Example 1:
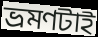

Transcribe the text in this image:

ভ্রমণটাই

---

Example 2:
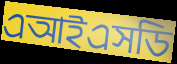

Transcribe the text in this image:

এআইএসডি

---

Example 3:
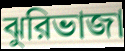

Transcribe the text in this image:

ঝুরিভাজা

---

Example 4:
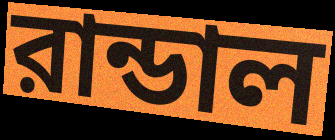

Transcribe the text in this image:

রান্ডাল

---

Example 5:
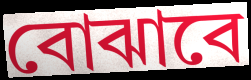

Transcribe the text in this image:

বোঝাবে